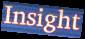
Insight